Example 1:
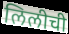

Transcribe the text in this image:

लिलीची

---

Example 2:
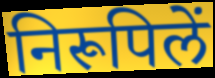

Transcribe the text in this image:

निरूपिलें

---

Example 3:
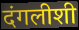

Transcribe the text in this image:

दंगलीशी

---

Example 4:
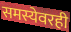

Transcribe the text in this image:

समस्येवरही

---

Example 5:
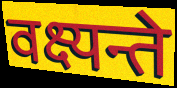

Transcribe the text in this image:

वक्ष्यन्ते